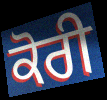
ਕੋਰੀ